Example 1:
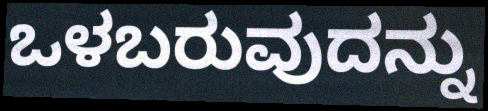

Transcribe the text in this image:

ಒಳಬರುವುದನ್ನು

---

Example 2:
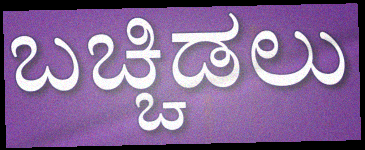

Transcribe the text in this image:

ಬಚ್ಚಿಡಲು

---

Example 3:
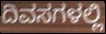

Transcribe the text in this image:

ದಿವಸಗಳಲ್ಲಿ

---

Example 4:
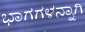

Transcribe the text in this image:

ಭಾಗಗಳನ್ನಾಗಿ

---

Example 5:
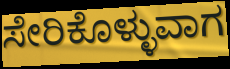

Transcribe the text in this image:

ಸೇರಿಕೊಳ್ಳುವಾಗ